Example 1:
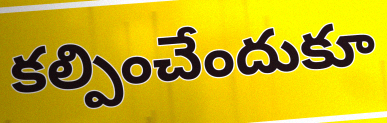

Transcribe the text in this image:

కల్పించేందుకూ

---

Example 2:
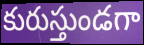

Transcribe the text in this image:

కురుస్తుండగా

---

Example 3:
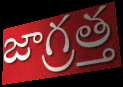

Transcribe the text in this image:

జాగ్రత్త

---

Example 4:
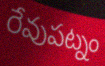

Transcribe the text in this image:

రేవుపట్నం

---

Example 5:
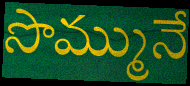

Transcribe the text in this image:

సొమ్మునే